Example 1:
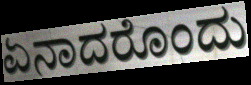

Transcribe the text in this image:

ಏನಾದರೊಂದು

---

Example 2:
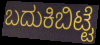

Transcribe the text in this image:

ಬದುಕಿಬಿಟ್ಟೆ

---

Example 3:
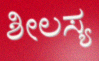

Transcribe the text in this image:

ಶೀಲಸ್ಯ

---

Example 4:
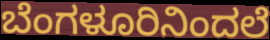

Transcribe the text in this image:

ಬೆಂಗಳೂರಿನಿಂದಲೆ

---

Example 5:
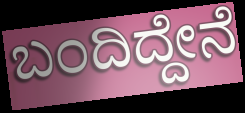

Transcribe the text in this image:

ಬಂದಿದ್ದೇನೆ